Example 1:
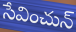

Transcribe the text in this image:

సేవించున్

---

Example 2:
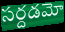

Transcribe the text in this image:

సర్దడమో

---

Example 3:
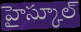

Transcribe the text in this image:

హైస్కూల్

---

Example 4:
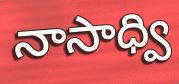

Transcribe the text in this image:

నాసాధ్వి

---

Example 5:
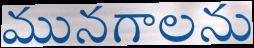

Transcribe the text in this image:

మునగాలను